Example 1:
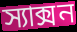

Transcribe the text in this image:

স্যাক্সন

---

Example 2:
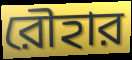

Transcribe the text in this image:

রৌহার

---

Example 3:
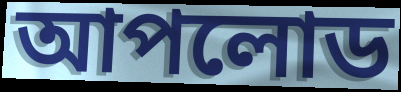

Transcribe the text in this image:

আপলোড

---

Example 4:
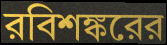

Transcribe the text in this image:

রবিশঙ্করের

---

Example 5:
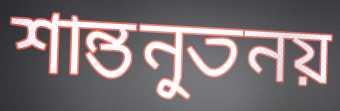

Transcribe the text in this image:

শান্তনুতনয়